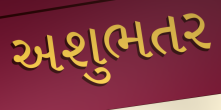
અશુભતર